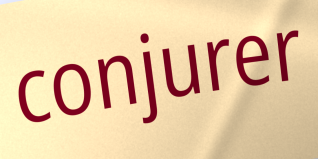
conjurer